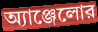
অ্যাঞ্জেলোর